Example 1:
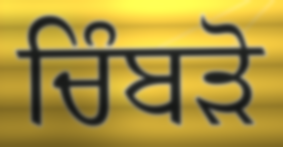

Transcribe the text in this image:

ਚਿੰਬੜੋ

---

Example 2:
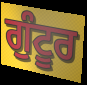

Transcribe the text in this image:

ਗੁੰਟੂਰ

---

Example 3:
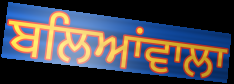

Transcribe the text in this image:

ਬਲਿਆਂਵਾਲਾ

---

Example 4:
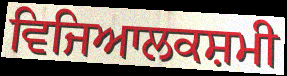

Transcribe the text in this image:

ਵਿਜਿਆਲਕਸ਼ਮੀ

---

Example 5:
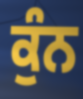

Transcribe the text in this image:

ਕੁੰਨ